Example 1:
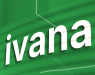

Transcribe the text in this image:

ivana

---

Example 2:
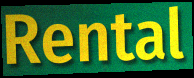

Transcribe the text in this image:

Rental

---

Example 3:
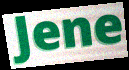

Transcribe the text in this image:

Jene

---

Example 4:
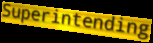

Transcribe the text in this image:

Superintending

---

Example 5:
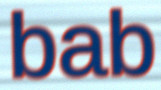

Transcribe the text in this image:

bab